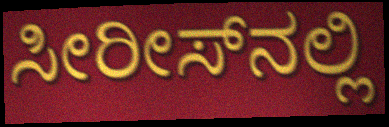
ಸೀರೀಸ್‌ನಲ್ಲಿ